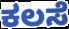
ಕಲಸೆ